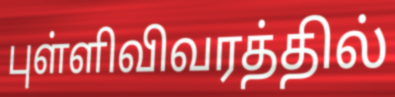
புள்ளிவிவரத்தில்